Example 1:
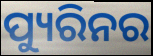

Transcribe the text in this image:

ପ୍ୟୁରିନର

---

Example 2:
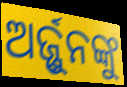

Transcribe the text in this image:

ଅର୍ଜ୍ଜୁନଙ୍କୁ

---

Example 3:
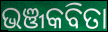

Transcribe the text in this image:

ଭଞ୍ଜକବିତା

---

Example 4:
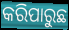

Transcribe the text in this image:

କରିପାରୁଛ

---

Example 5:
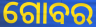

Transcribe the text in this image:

ଗୋବର